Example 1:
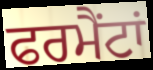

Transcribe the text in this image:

ਫਰਮੈਂਟਾਂ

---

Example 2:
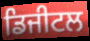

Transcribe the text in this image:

ਡਿਜੀਟਲ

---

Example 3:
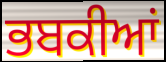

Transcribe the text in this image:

ਭਬਕੀਆਂ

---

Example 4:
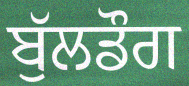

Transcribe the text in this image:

ਬੁੱਲਡੌਗ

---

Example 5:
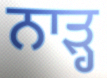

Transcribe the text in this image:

ਨਾੜ੍ਹ